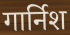
गार्निश